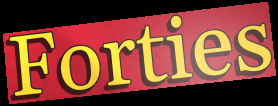
Forties